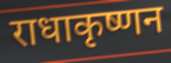
राधाकृष्णन